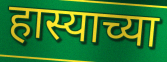
हास्याच्या